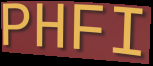
PHFI